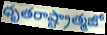
ధృతరాష్ట్రాత్మజో